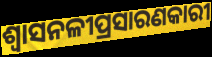
ଶ୍ୱାସନଳୀପ୍ରସାରଣକାରୀ